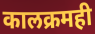
कालक्रमही